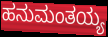
ಹನುಮಂತಯ್ಯ